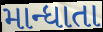
માન્ધાતા